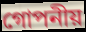
গোপনীয়